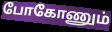
போகோணும்